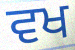
ਵਖ